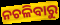
ନଚଳିବାରୁ